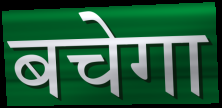
बचेगा